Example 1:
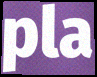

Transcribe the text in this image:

pla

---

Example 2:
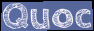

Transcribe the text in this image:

Quoc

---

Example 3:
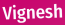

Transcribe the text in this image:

Vignesh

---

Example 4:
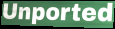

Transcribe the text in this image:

Unported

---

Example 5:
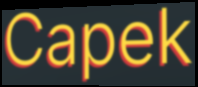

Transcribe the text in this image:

Capek